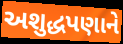
અશુદ્ધપણાને